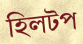
হিলটপ